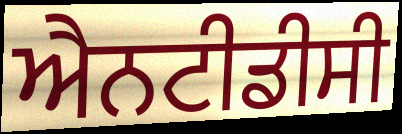
ਐਨਟੀਡੀਸੀ